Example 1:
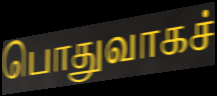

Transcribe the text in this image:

பொதுவாகச்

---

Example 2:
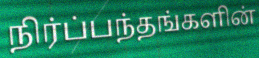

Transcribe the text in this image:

நிர்ப்பந்தங்களின்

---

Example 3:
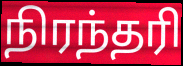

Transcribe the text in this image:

நிரந்தரி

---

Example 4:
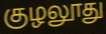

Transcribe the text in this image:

குழலூது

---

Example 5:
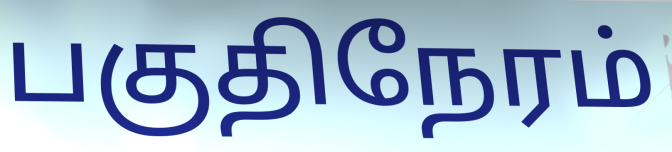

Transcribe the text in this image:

பகுதிநேரம்